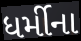
ધર્મીના